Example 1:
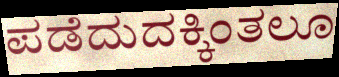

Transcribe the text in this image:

ಪಡೆದುದಕ್ಕಿಂತಲೂ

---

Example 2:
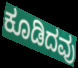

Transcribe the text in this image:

ಕೂಡಿದವು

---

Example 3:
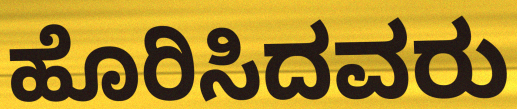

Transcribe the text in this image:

ಹೊರಿಸಿದವರು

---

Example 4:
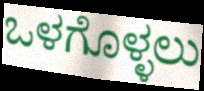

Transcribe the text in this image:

ಒಳಗೊಳ್ಳಲು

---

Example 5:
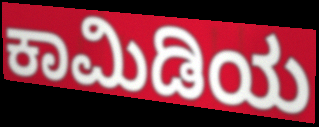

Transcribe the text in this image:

ಕಾಮಿಡಿಯ